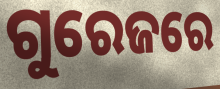
ଗୁରେଜରେ